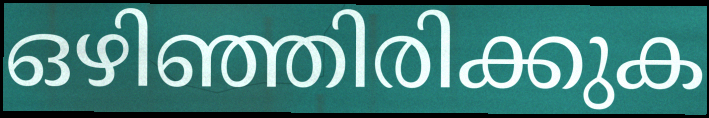
ഒഴിഞ്ഞിരിക്കുക